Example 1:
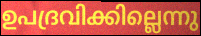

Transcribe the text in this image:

ഉപദ്രവിക്കില്ലെന്നു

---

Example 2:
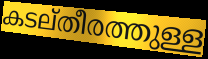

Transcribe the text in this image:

കടല്തീരത്തുള്ള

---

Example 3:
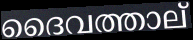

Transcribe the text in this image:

ദൈവത്താല്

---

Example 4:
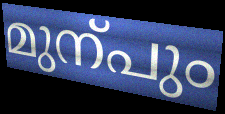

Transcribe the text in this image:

മുന്പും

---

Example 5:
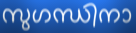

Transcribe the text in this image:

സുഗന്ധിനാ